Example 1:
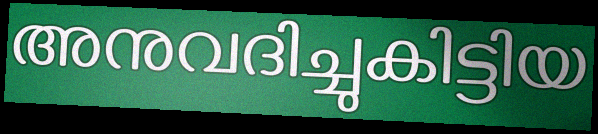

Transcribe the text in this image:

അനുവദിച്ചുകിട്ടിയ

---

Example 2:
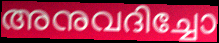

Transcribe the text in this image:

അനുവദിച്ചോ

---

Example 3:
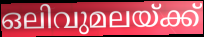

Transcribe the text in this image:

ഒലിവുമലയ്ക്ക്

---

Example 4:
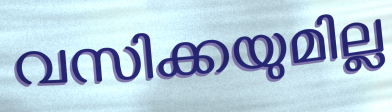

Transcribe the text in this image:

വസിക്കയുമില്ല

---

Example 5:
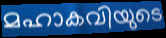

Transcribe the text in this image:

മഹാകവിയുടെ